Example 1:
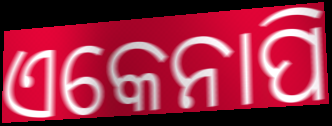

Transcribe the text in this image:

ଏକେନାପି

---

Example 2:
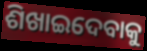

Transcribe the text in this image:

ଶିଖାଇଦେବାକୁ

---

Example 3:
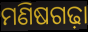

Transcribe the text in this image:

ମଣିଷଗଢ଼ା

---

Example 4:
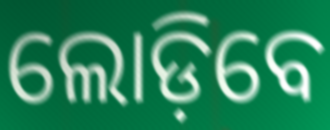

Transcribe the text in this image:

ଲୋଡ଼ିବେ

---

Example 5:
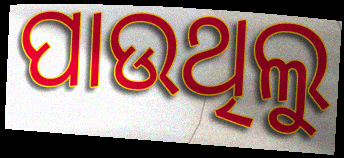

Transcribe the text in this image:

ପାଉଥିଲୁ